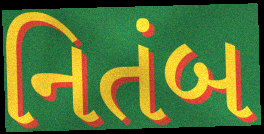
નિતંબ